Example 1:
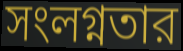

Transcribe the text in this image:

সংলগ্নতার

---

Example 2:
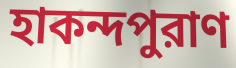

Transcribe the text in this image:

হাকন্দপুরাণ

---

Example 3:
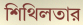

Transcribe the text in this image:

শিথিলতার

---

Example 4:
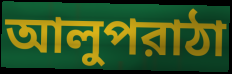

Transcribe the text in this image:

আলুপরাঠা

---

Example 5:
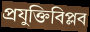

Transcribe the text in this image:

প্রযুক্তিবিপ্লব